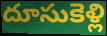
దూసుకెళ్లి